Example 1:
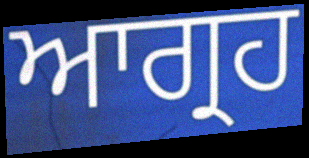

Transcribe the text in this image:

ਆਗ੍ਰਹ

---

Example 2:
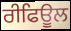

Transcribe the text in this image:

ਰੀਫਿਊਲ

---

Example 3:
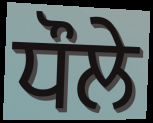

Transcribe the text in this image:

ਧੌਲੇ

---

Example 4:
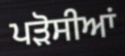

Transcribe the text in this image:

ਪੜੋਸੀਆਂ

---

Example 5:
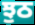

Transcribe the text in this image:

ਝੁਠ